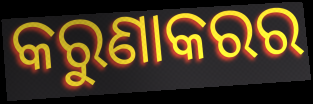
କରୁଣାକରର